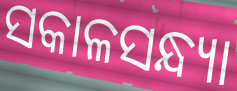
ସକାଳସନ୍ଧ୍ୟା